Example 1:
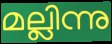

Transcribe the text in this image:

മല്ലിന്നു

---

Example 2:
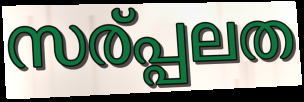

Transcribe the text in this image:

സര്പ്പലത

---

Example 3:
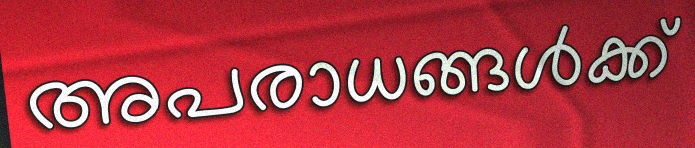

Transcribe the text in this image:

അപരാധങ്ങൾക്ക്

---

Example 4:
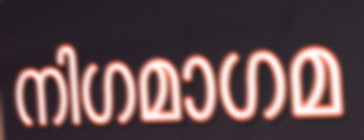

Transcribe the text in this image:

നിഗമാഗമ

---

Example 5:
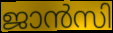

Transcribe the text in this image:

ജാൻസി